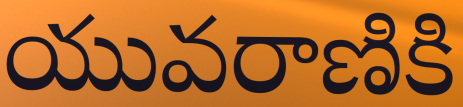
యువరాణికి